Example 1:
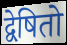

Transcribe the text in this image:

द्वेषितो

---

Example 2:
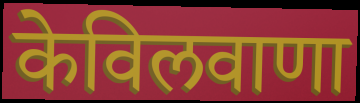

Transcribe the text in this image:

केविलवाणा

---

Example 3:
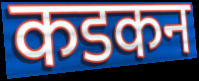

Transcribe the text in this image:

कडकन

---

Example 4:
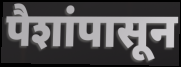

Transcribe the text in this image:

पैशांपासून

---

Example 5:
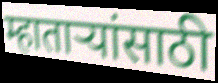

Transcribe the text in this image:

म्हाताऱ्यांसाठी